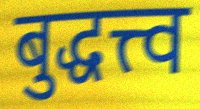
बुद्धत्त्व